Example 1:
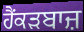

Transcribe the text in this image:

ਹੈਂਕੜਬਾਜ਼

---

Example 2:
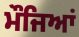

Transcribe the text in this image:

ਮੌਜਿਆਂ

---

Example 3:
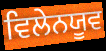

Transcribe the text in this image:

ਵਿਲੇਨਯੂਵ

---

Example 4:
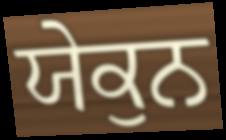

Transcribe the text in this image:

ਯੇਕੁਨ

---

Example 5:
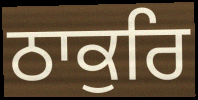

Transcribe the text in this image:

ਠਾਕੁਰਿ